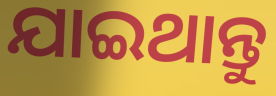
ଯାଇଥାନ୍ତୁ